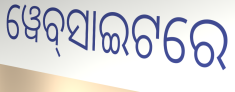
ୱେବ୍‍ସାଇଟରେ